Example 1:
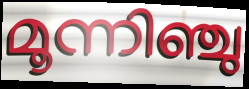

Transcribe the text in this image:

മൂന്നിഞ്ചു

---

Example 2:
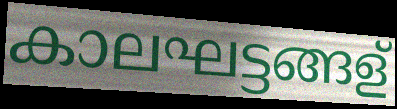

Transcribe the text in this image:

കാലഘട്ടങ്ങള്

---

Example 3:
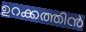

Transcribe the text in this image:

ഉറക്കത്തിൻ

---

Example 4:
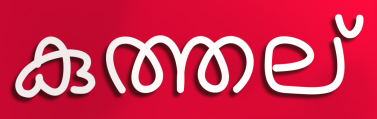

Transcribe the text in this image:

കുത്തല്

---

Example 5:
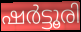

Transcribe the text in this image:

ഷർട്ടൂരി